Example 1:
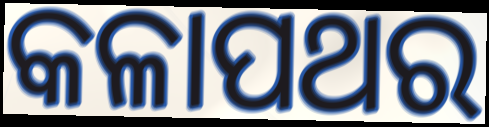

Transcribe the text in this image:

କଳାପଥର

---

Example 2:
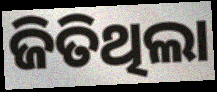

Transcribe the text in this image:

ଜିତିଥିଲା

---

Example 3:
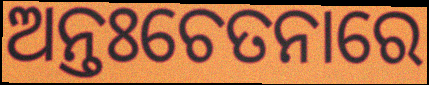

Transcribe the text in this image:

ଅନ୍ତଃଚେତନାରେ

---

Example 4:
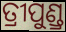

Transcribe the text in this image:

ତ୍ରୀପୁଣ୍ଡ୍ର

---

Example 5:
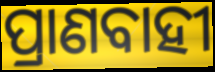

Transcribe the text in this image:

ପ୍ରାଣବାହୀ